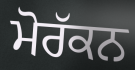
ਮੋਰੱਕਨ